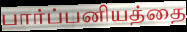
பார்ப்பனியத்தை